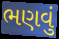
ભણવું